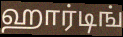
ஹார்டிங்